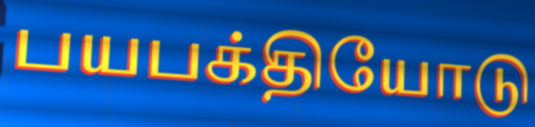
பயபக்தியோடு